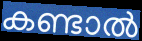
കണ്ടാൽ